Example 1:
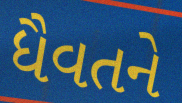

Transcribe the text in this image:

ધૈવતને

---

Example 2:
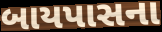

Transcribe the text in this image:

બાયપાસના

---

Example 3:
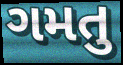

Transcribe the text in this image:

ગમતુ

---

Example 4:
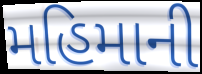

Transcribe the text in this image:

મહિમાની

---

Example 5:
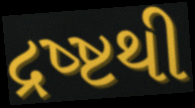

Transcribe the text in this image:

દ્રષ્ષ્ટથી